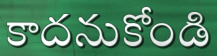
కాదనుకోండి